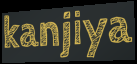
kanjiya